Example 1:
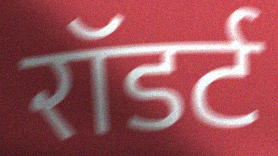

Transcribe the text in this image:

रॉडर्ट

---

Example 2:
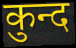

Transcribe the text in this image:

कुन्द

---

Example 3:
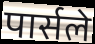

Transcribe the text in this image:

पार्सले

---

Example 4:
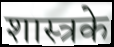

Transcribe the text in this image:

शास्त्रके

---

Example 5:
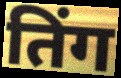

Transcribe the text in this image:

तिंग